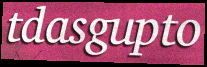
tdasgupto